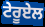
ਟੇਰੂਏਲ